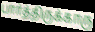
பார்த்திருக்காரு